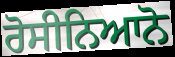
ਰੋਸੀਨਿਆਨੋ